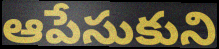
ఆపేసుకుని